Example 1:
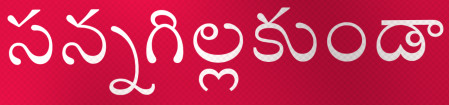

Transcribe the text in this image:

సన్నగిల్లకుండా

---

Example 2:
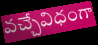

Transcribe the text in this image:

వచ్చేవిధంగా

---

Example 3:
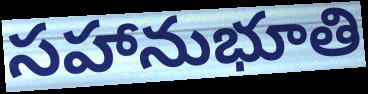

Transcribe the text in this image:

సహానుభూతి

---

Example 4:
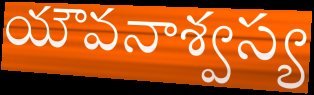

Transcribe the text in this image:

యౌవనాశ్వస్య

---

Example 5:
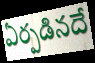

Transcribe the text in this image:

ఏర్పడినదే